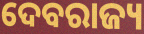
ଦେବରାଜ୍ୟ